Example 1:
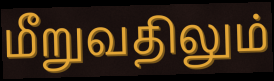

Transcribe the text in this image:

மீறுவதிலும்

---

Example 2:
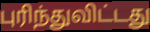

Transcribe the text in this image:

புரிந்துவிட்டது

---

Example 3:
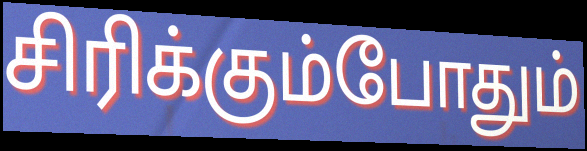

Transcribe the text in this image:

சிரிக்கும்போதும்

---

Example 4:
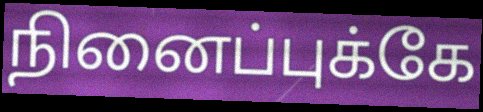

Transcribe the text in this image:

நினைப்புக்கே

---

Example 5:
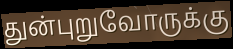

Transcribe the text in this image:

துன்புறுவோருக்கு